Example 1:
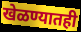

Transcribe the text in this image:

खेळण्यातही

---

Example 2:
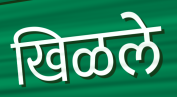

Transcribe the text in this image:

खिळले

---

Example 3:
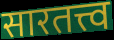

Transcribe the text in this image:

सारतत्त्व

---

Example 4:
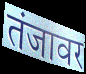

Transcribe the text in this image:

तंजावर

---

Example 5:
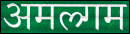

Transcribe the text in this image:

अमल्गम